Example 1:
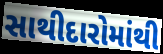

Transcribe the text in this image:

સાથીદારોમાંથી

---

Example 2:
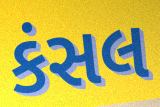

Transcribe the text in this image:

કંસલ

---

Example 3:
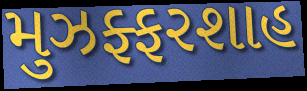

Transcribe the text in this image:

મુઝફ્ફરશાહ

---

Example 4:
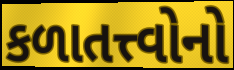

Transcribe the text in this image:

કળાતત્ત્વોનો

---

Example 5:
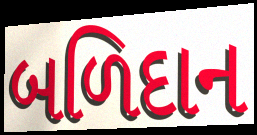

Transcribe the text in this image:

બળિદાન